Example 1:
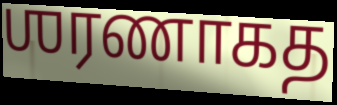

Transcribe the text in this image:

ஶரணாகத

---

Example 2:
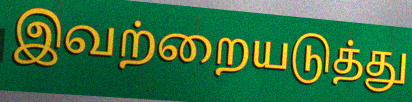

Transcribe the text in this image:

இவற்றையடுத்து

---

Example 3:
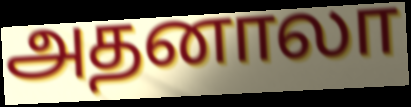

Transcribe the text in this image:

அதனாலா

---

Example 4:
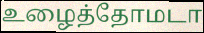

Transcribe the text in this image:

உழைத்தோமடா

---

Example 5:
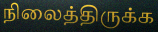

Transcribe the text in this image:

நிலைத்திருக்க